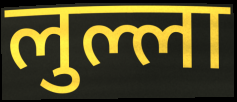
लुल्ला